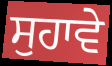
ਸੁਹਾਵੇ